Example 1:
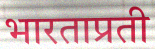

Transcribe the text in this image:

भारताप्रती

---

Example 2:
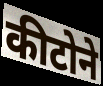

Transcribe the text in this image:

कीटोने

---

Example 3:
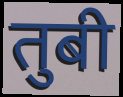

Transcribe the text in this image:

तुबी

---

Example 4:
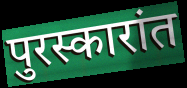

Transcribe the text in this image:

पुरस्कारांत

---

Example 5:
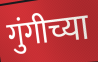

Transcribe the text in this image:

गुंगीच्या